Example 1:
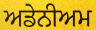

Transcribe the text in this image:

ਅਡੇਨੀਅਮ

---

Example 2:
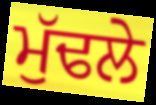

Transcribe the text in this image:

ਮੁੱਢਲੇ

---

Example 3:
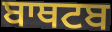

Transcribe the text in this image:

ਬਾਥਟਬ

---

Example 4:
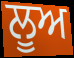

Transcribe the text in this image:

ਲੂਅ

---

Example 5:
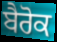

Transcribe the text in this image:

ਬੈਰੋਕ